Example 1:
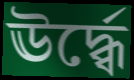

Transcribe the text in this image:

ঊর্দ্ধ্বে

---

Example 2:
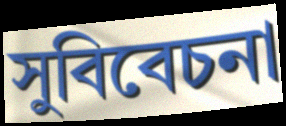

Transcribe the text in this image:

সুবিবেচনা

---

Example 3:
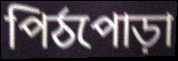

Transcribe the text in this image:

পিঠপোড়া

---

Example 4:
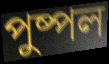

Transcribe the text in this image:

পুষ্পল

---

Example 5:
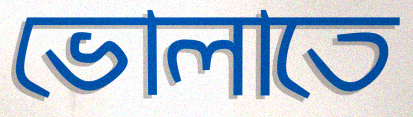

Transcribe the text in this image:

ভোলাতে